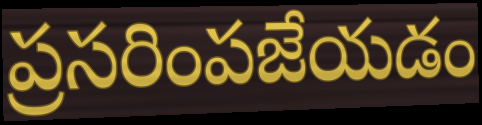
ప్రసరింపజేయడం